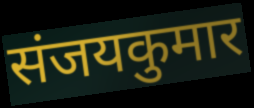
संजयकुमार